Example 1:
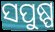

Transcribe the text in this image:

ସପୁଷ୍ପ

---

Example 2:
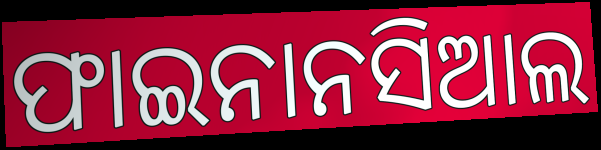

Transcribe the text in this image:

ଫାଇନାନସିଆଲ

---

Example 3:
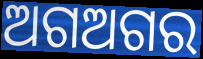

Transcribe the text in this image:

ଅଗଅଗର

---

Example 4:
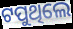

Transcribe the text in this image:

ଟପୁଥିଲେ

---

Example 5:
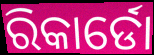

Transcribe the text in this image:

ରିକାର୍ଡୋ